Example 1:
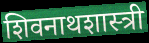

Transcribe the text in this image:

शिवनाथशास्त्री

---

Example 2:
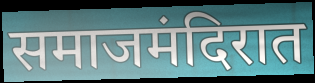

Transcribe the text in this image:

समाजमंदिरात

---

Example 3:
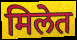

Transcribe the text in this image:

मिलेत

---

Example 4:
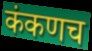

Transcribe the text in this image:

कंकणच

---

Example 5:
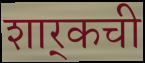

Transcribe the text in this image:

शार्कची